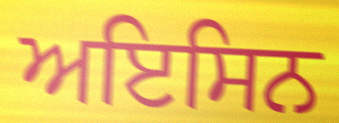
ਅਇਸਿਨ